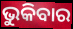
ଭୁକିବାର